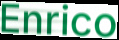
Enrico